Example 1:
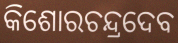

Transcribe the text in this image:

କିଶୋରଚନ୍ଦ୍ରଦେବ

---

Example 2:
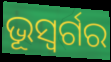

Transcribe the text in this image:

ଭୂସ୍ବର୍ଗର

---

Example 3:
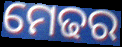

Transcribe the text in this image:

ମେଢର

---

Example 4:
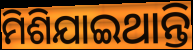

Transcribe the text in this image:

ମିଶିଯାଇଥାନ୍ତି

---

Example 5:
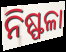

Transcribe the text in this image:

ନିଷ୍ଫଳା